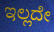
ಇಲ್ಲದೇ